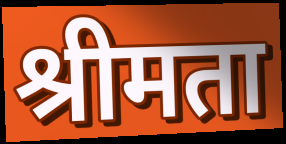
श्रीमता